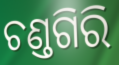
ଚଣ୍ଡଗିରି